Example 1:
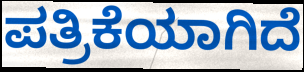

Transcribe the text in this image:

ಪತ್ರಿಕೆಯಾಗಿದೆ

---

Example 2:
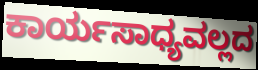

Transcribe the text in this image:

ಕಾರ್ಯಸಾಧ್ಯವಲ್ಲದ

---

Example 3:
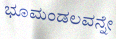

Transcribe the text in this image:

ಭೂಮಂಡಲವನ್ನೇ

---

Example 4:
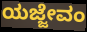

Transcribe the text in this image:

ಯಜ್ಜೇವಂ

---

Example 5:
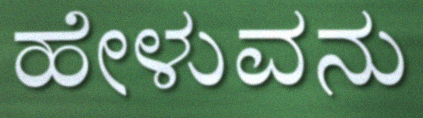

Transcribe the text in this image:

ಹೇಳುವನು